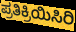
ಪ್ರತಿಕ್ರಿಯಿಸಿರಿ